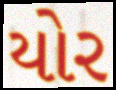
યોર